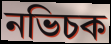
নভিচক